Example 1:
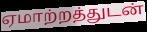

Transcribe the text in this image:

ஏமாற்றத்துடன்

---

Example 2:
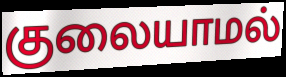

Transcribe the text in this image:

குலையாமல்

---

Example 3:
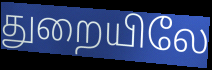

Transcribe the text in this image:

துறையிலே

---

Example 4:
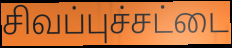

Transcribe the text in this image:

சிவப்புச்சட்டை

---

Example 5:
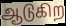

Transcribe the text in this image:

ஆடுகிற